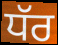
ਧੱਰ